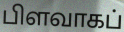
பிளவாகப்